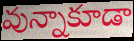
వున్నాకూడా